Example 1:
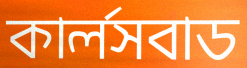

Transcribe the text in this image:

কার্লসবাড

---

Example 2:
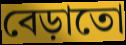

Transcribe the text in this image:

বেড়াতো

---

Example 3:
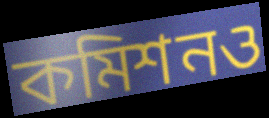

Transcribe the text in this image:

কমিশনও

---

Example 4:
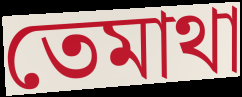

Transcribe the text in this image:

তেমাথা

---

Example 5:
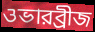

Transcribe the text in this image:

ওভারব্রীজ